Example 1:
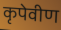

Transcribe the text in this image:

कृपेवीण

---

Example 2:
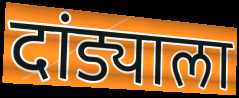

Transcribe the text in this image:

दांड्याला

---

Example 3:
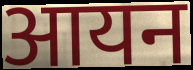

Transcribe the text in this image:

आयन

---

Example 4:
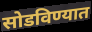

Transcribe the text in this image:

सोडविण्यात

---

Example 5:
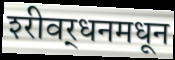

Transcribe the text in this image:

श्रीवर्धनमधून